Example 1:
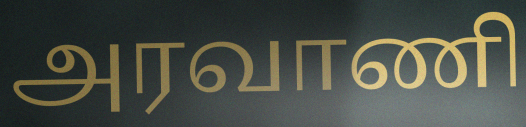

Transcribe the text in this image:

அரவாணி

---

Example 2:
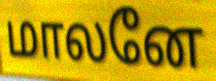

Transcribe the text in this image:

மாலனே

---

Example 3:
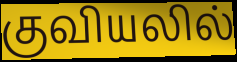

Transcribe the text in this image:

குவியலில்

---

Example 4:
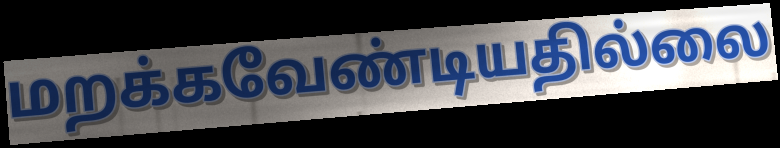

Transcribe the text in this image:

மறக்கவேண்டியதில்லை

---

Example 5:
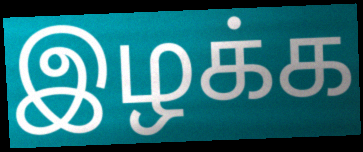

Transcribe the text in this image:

இழக்க